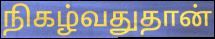
நிகழ்வதுதான்